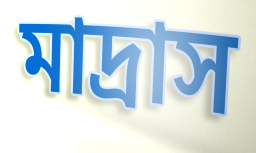
মাদ্রাস